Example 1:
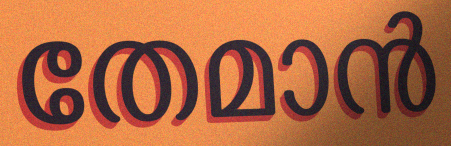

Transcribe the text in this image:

തേമാൻ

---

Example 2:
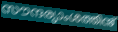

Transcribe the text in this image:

സൗന്ദര്യാംശത്തിനു്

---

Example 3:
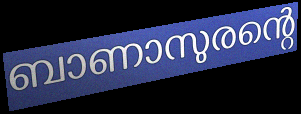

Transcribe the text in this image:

ബാണാസുരന്റെ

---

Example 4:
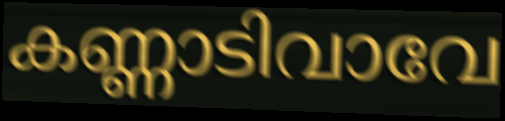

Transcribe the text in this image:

കണ്ണാടിവാവേ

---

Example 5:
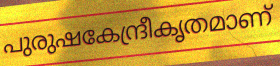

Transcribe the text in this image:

പുരുഷകേന്ദ്രീകൃതമാണ്